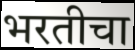
भरतीचा